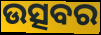
ଉତ୍ସବର